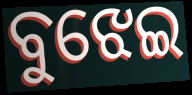
ବୁଝେଇ